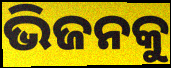
ଭିଜନକୁ